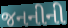
જનનીની